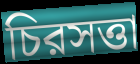
চিরসত্তা